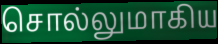
சொல்லுமாகிய